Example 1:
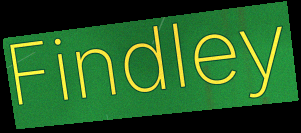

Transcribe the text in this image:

Findley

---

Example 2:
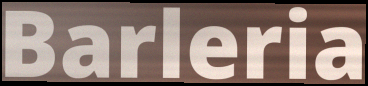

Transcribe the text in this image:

Barleria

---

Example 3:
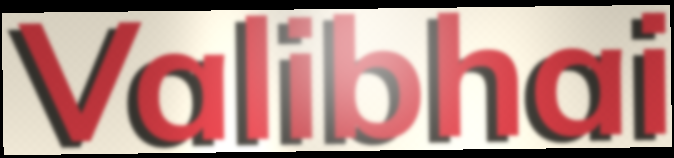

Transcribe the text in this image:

Valibhai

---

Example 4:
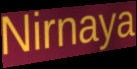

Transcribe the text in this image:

Nirnaya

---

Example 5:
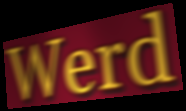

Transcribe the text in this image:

Werd